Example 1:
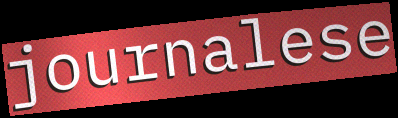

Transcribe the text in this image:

journalese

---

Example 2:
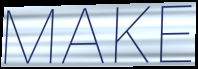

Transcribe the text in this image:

MAKE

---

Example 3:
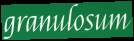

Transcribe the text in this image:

granulosum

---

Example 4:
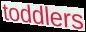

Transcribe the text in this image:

toddlers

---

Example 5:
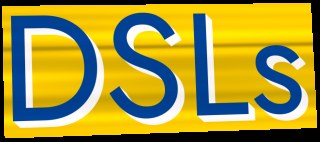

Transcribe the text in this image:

DSLs